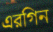
এরগিন